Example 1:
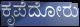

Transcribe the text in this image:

ಕೃಪೆದೋರು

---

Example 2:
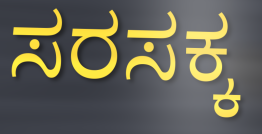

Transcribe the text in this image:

ಸರಸಕ್ಕ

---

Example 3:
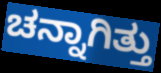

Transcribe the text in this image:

ಚನ್ನಾಗಿತ್ತು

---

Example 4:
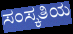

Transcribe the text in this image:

ಸಂಸ್ಕತಿಯ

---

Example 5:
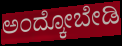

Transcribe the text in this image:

ಅಂದ್ಕೋಬೇಡಿ